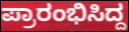
ಪ್ರಾರಂಭಿಸಿದ್ದ